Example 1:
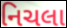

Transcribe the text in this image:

નિચલા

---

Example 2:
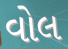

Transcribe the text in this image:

વોલ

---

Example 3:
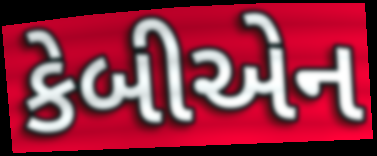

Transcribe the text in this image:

કેબીએન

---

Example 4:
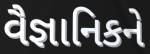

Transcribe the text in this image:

વૈજ્ઞાનિકને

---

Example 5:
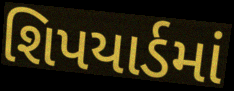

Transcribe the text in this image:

શિપયાર્ડમાં